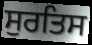
ਸੁਰਤਿਸ